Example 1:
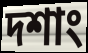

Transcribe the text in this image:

দশাং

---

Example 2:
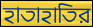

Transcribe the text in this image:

হাতাহাতির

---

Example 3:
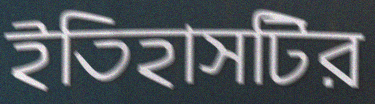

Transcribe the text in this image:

ইতিহাসটির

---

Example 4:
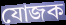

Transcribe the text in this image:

যোজক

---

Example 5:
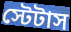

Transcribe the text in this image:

স্টেটাস